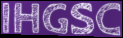
IHGSC